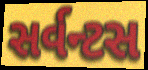
સર્વન્ટસ